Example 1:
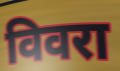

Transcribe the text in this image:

विवरा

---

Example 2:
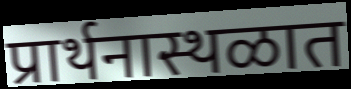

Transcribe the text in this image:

प्रार्थनास्थळात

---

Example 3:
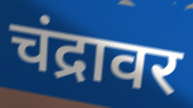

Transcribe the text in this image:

चंद्रावर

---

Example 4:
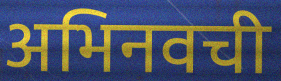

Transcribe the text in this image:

अभिनवची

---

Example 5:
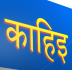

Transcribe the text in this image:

काहिइ